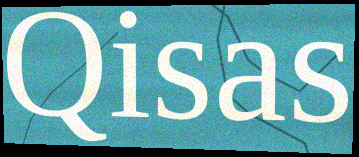
Qisas